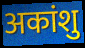
अकांशु